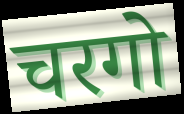
चरगो